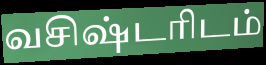
வசிஷ்டரிடம்